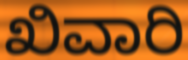
ಖಿವಾರಿ